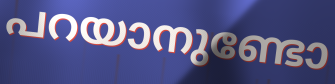
പറയാനുണ്ടോ